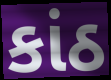
કાંઠ